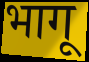
भागू